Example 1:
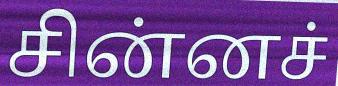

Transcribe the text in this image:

சின்னச்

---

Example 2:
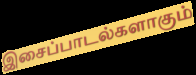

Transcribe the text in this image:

இசைப்பாடல்களாகும்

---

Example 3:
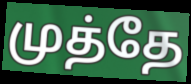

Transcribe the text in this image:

முத்தே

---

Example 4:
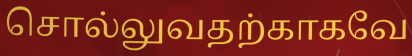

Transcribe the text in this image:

சொல்லுவதற்காகவே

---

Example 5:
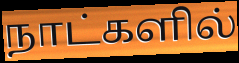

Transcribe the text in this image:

நாட்களில்